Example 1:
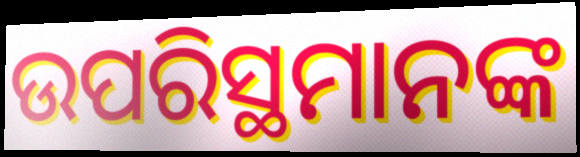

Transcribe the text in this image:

ଉପରିସ୍ଥମାନଙ୍କ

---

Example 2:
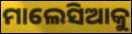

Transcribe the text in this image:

ମାଲେସିଆକୁ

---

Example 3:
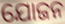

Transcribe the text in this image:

ଯୋଜନ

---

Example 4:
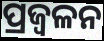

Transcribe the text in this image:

ପ୍ରଜ୍ବଳନ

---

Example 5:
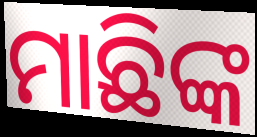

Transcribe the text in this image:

ମାଛିଙ୍କ